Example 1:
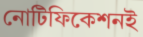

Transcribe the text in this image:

নোটিফিকেশনই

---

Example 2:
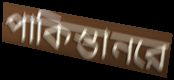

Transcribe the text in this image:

পাকিস্তানরে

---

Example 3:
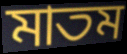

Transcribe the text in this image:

মাতম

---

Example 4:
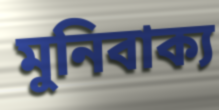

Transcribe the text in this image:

মুনিবাক্য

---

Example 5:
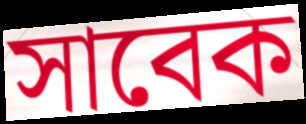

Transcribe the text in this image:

সাবেক